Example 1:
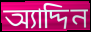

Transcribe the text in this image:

অ্যাদ্দিন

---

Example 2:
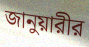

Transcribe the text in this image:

জানুয়ারীর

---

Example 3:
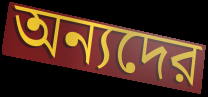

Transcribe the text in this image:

অন্যদের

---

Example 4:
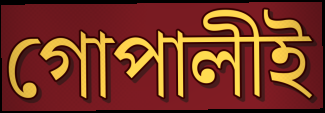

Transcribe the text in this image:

গোপালীই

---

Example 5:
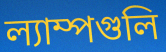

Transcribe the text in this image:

ল্যাম্পগুলি